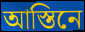
আস্তিনে